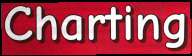
Charting